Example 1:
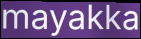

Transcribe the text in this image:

mayakka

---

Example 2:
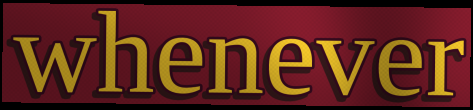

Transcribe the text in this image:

whenever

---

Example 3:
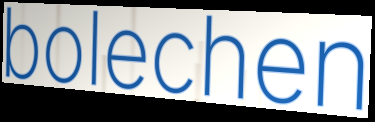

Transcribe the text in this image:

bolechen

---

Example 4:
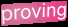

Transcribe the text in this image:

proving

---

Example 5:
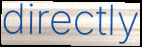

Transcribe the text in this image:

directly